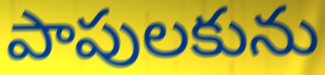
పాపులకును